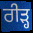
ਰੀੜ੍ਹ